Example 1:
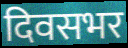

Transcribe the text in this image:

दिवसभर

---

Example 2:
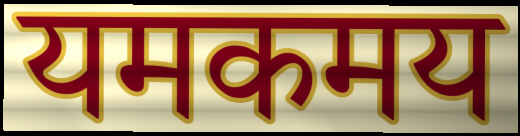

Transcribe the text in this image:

यमकमय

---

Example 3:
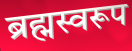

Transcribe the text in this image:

ब्रह्मस्वरूप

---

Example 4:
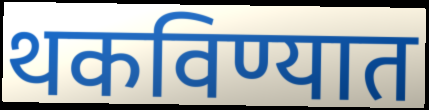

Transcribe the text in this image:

थकविण्यात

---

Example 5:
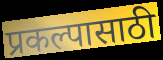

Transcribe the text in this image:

प्रकल्पासाठी